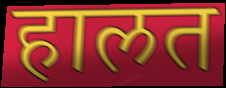
हालत